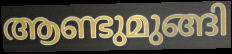
ആണ്ടുമുങ്ങി